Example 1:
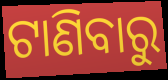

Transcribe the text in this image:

ଟାଣିବାରୁ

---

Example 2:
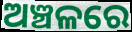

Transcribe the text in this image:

ଅଞ୍ଚଳରେ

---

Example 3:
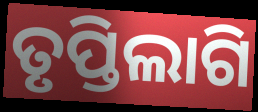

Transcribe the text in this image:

ତୃପ୍ତିଲାଗି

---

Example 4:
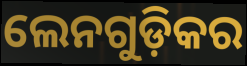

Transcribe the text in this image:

ଲେନଗୁଡ଼ିକର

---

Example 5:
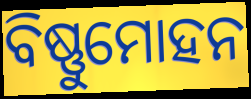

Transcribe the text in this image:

ବିଷ୍ଣୁମୋହନ